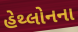
હેથ્લોનના